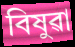
বিষুৱা